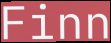
Finn